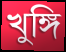
খুঙ্গি